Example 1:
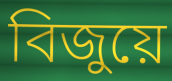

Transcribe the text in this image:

বিজুয়ে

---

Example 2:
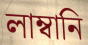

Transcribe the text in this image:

লাম্বানি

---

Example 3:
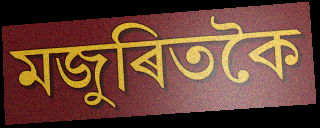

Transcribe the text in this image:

মজুৰিতকৈ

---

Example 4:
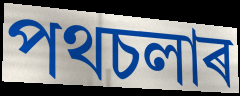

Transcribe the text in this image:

পথচলাৰ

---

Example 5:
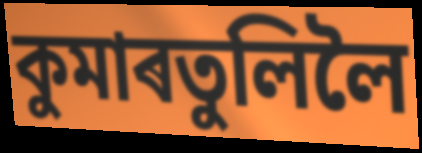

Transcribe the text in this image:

কুমাৰতুলিলৈ